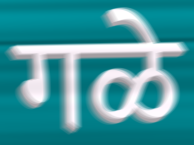
गळे